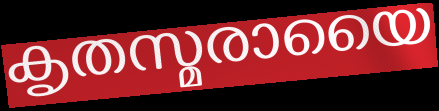
കൃതസ്മരായൈ